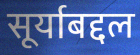
सूर्याबद्दल